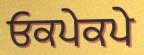
ਓਕਪੇਕਪੇ